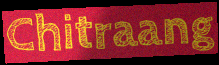
Chitraang